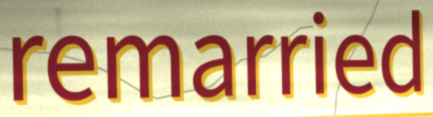
remarried